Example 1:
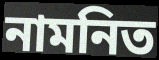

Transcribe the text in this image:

নামনিত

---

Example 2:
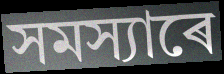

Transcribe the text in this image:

সমস্যাৰে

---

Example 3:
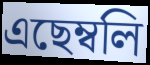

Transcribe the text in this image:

এছেম্বলি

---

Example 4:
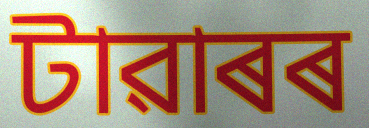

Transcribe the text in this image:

টাৱাৰৰ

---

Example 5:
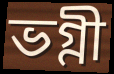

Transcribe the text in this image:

ভগ্নী